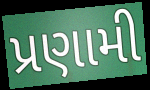
પ્રણામી